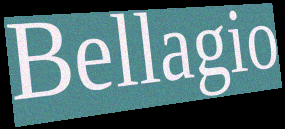
Bellagio